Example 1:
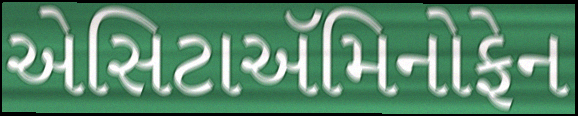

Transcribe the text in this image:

એસિટાઍમિનોફેન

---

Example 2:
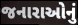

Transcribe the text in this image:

જનારાઓનું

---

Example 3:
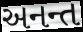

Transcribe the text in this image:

અનન્ત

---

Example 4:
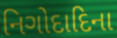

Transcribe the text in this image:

નિગોદાદિના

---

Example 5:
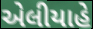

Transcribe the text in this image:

એલીયાહે